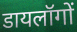
डायलॉगों